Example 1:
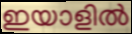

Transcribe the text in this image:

ഇയാളിൽ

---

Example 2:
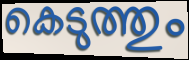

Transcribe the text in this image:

കെടുത്തും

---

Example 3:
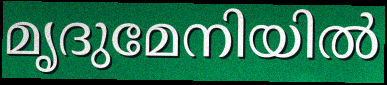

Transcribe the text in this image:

മൃദുമേനിയിൽ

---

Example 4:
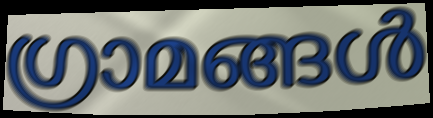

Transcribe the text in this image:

ഗ്രാമങ്ങൾ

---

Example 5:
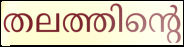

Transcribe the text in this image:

തലത്തിന്റെ